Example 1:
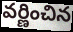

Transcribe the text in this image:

వర్ణించిన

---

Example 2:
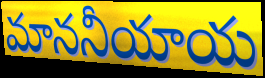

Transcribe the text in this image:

మాననీయాయ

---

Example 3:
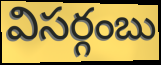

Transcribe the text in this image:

విసర్గంబు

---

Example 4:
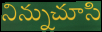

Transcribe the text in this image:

నిన్నుచూసి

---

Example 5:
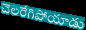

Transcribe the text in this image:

చెలరేగిపోయాడు